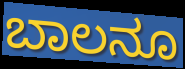
ಬಾಲನೂ